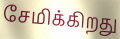
சேமிக்கிறது